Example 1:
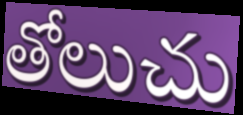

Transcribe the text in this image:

తోలుచు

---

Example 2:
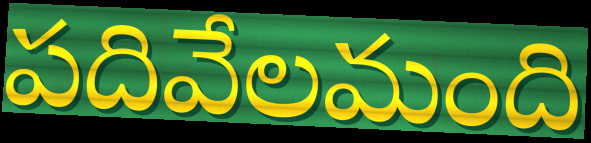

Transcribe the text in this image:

పదివేలమంది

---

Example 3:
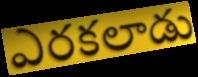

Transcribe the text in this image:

ఎరకలాడు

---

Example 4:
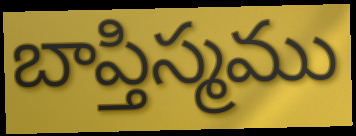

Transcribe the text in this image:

బాప్తిస్మము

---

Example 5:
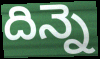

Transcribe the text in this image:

దిన్నె